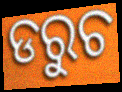
ଡରୁଚ